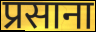
प्रसाना